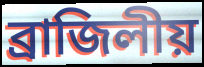
ব্রাজিলীয়